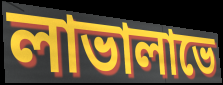
লাভালাভে